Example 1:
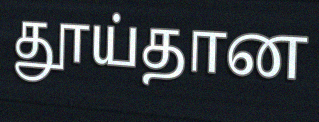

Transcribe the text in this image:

தூய்தான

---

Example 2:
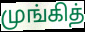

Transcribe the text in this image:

முங்கித்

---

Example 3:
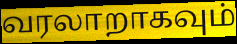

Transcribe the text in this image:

வரலாறாகவும்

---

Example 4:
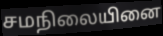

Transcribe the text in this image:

சமநிலையினை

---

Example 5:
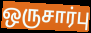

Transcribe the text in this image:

ஒருசார்பு